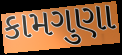
કામગુણા